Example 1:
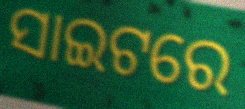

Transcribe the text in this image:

ସାଇଟରେ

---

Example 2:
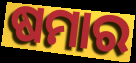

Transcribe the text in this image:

ଷମାର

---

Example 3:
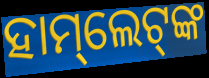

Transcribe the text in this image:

ହାମ୍‌ଲେଟ୍‌ଙ୍କ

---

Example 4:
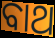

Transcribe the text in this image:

ବାଥ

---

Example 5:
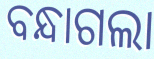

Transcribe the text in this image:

ବନ୍ଧାଗଲା